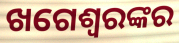
ଖଗେଶ୍ୱରଙ୍କର